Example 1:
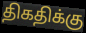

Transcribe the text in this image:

திகதிக்கு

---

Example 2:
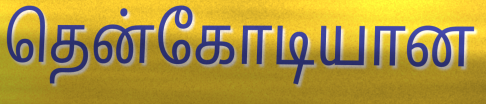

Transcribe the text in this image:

தென்கோடியான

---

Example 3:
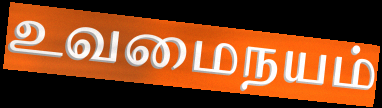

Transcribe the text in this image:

உவமைநயம்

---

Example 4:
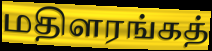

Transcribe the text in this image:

மதிளரங்கத்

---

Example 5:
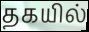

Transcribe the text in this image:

தகயில்